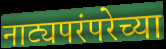
नाट्यपरंपरेच्या